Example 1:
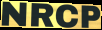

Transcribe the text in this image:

NRCP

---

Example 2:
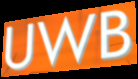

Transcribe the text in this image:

UWB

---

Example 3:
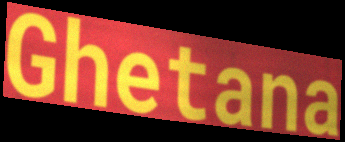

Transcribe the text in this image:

Ghetana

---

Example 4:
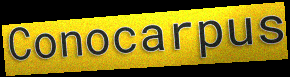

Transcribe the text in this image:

Conocarpus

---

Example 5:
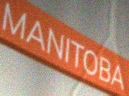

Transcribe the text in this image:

MANITOBA